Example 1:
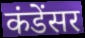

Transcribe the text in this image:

कंडेंसर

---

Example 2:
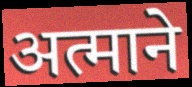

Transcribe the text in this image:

अत्माने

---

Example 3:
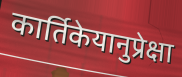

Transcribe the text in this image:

कार्तिकेयानुप्रेक्षा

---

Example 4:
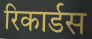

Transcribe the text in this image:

रिकार्डस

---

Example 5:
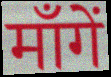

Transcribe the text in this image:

माँगें